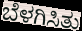
ಬೆಳಗಿಸಿತು